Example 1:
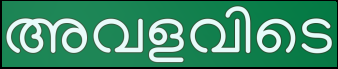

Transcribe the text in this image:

അവളവിടെ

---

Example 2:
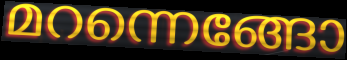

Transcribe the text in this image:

മറന്നെങ്ങോ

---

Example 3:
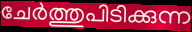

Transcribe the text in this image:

ചേർത്തുപിടിക്കുന്ന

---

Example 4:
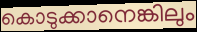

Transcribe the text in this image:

കൊടുക്കാനെങ്കിലും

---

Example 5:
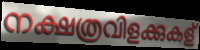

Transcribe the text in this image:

നക്ഷത്രവിളക്കുകള്